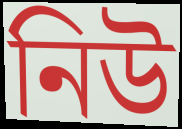
নিউ